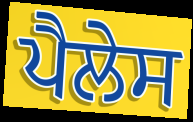
ਪੈਲੇਸ